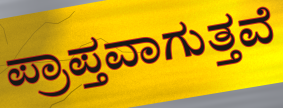
ಪ್ರಾಪ್ತವಾಗುತ್ತವೆ